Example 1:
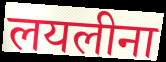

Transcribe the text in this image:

लयलीना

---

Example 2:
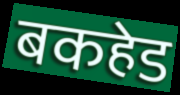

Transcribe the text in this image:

बकहेड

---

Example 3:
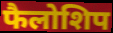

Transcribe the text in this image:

फैलोशिप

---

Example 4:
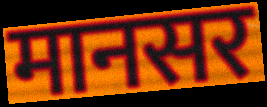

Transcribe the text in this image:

मानसर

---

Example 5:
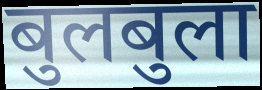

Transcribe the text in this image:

बुलबुला